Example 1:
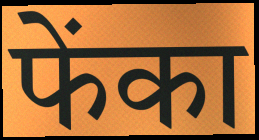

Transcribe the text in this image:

फेंका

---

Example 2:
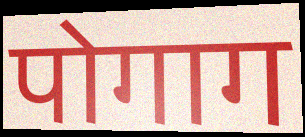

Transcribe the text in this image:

पोगाग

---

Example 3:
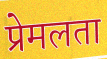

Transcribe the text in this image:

प्रेमलता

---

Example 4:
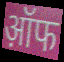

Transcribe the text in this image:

ऑ़फ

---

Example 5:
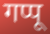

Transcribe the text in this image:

गप्पू